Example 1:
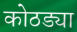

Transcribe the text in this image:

कोठड्या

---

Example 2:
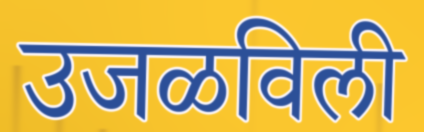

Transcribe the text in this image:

उजळविली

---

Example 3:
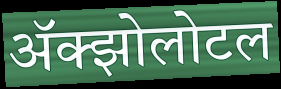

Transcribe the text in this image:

ॲक्झोलोटल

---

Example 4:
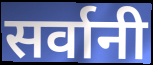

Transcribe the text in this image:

सर्वानी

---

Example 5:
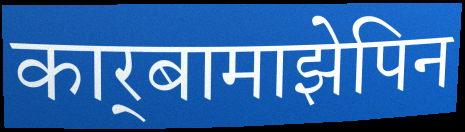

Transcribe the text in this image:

कार्बामाझेपिन